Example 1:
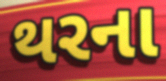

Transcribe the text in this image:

થરના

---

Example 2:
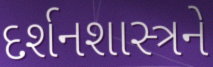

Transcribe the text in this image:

દર્શનશાસ્ત્રને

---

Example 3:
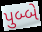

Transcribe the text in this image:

પુબ્બે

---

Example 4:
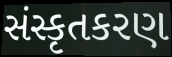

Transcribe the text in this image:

સંસ્કૃતકરણ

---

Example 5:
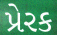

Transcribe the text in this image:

પ્રેરક